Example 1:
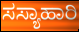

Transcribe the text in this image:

ಸಸ್ಯಾಹಾರಿ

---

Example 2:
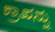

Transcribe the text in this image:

ಕ್ರಾಪನ್ನು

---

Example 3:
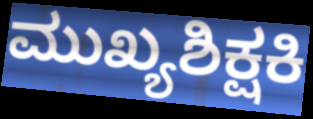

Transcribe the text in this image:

ಮುಖ್ಯಶಿಕ್ಷಕಿ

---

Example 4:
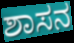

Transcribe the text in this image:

ಶಾಸನ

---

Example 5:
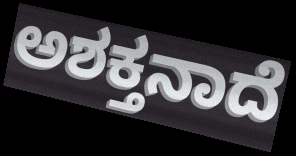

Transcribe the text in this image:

ಅಶಕ್ತನಾದೆ